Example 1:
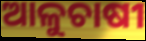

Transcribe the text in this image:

ଆଳୁଚାଷୀ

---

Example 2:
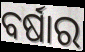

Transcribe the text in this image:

ବର୍ଷାର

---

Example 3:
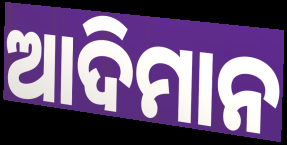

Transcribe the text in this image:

ଆଦିମାନ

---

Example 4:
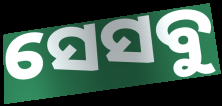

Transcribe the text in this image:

ସେସବୁ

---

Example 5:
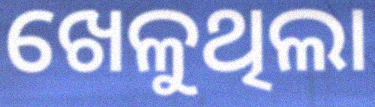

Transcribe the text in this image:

ଖେଳୁଥିଲା